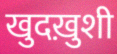
खुदख़ुशी